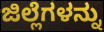
ಜಿಲ್ಲೆಗಳನ್ನು